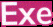
Exe